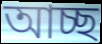
আচ্ছ